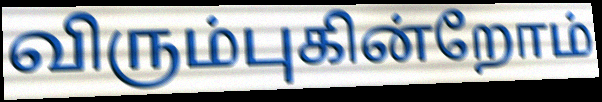
விரும்புகின்றோம்